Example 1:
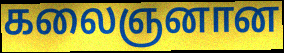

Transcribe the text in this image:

கலைஞனான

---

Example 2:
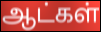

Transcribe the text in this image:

ஆட்கள்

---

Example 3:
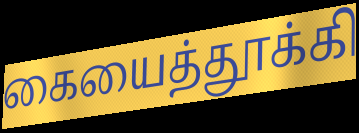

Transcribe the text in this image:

கையைத்தூக்கி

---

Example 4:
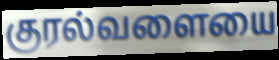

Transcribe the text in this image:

குரல்வளையை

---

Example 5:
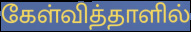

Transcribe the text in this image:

கேள்வித்தாளில்